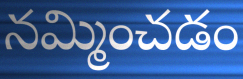
నమ్మించడం